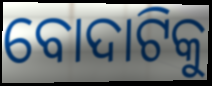
ବୋଦାଟିକୁ